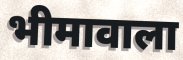
भीमावाला